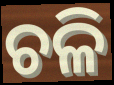
ଚଳି